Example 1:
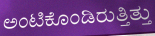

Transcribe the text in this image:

ಅಂಟಿಕೊಂಡಿರುತ್ತಿತ್ತು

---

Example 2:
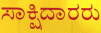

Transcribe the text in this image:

ಸಾಕ್ಷಿದಾರರು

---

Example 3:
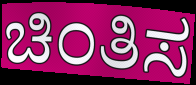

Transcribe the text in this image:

ಚಿಂತಿಸ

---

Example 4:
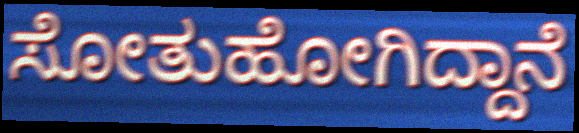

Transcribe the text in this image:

ಸೋತುಹೋಗಿದ್ದಾನೆ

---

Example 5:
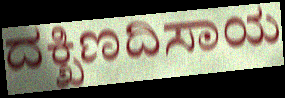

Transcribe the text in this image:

ದಕ್ಖಿಣದಿಸಾಯ